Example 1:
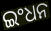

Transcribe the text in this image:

ଇଂଧନ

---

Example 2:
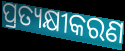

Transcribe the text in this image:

ପ୍ରତ୍ୟକ୍ଷୀକରଣ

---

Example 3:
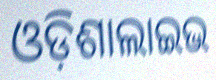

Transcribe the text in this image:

ଓଡ଼ିଶାଲାଇଭ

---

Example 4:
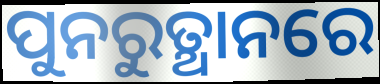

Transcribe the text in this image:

ପୁନରୁତ୍ଥାନରେ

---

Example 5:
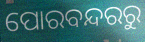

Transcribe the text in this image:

ପୋରବନ୍ଦରରୁ